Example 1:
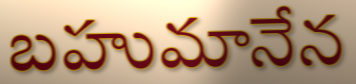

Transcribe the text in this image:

బహుమానేన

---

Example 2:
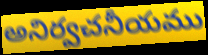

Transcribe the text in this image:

అనిర్వచనీయము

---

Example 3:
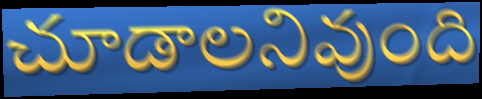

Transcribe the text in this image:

చూడాలనివుంది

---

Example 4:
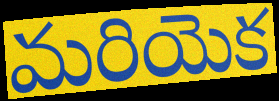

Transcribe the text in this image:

మరియెక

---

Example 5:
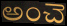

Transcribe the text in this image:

అంచె